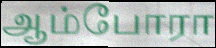
ஆம்போரா